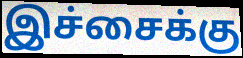
இச்சைக்கு